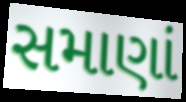
સમાણાં